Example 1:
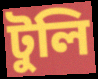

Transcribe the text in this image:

টুলি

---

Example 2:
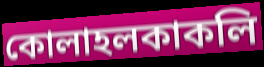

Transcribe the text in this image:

কোলাহলকাকলি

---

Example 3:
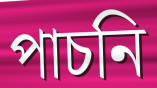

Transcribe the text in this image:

পাচনি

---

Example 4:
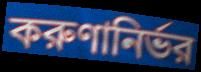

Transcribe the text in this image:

করুণানির্ভর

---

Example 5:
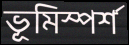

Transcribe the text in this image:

ভূমিস্পর্শ